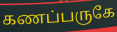
கணப்பருகே